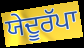
ਯੇਦੂਰੱਪਾ